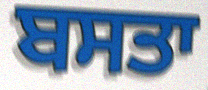
ਬਸਤਾ